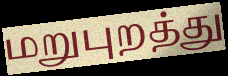
மறுபுறத்து